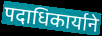
पदाधिकार्याने